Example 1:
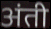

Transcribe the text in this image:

अंती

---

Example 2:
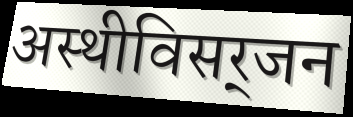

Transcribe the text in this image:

अस्थीविसर्जन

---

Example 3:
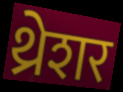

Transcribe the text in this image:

थ्रेशर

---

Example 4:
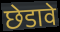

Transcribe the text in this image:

छेडावे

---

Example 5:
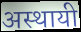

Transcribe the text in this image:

अस्थायी